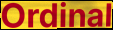
Ordinal